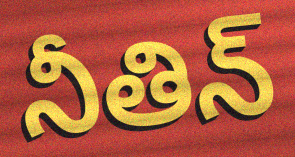
నీతిన్